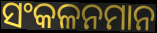
ସଂକଳନମାନ